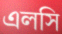
এলসি